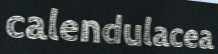
calendulacea